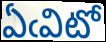
ఏఁవిటో